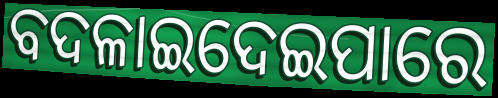
ବଦଳାଇଦେଇପାରେ